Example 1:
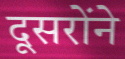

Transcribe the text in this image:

दूसरोंने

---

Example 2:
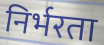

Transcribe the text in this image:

निर्भरता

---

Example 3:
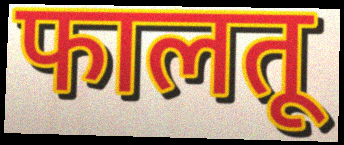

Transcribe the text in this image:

फालतू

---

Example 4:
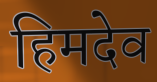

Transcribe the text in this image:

हिमदेव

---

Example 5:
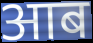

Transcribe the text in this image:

आब